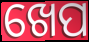
ଖେପ